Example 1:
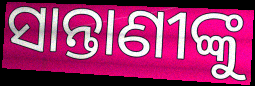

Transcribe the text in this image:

ସାନ୍ତାଣୀଙ୍କୁ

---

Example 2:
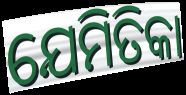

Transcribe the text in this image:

ଯେମିତିକା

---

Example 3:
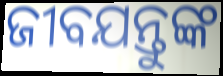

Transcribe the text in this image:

ଜୀବଯନ୍ତୁଙ୍କ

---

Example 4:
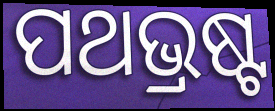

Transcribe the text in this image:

ପଥଭ୍ରଷ୍ଟ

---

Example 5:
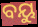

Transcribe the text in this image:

ବୟୁ